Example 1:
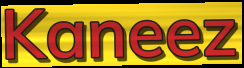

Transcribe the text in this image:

Kaneez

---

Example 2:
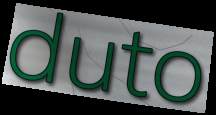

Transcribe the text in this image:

duto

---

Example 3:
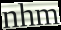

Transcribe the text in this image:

nhm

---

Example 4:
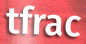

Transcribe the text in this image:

tfrac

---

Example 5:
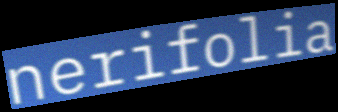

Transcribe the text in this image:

nerifolia